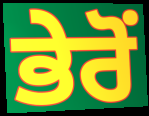
ਭੇਰੋਂ